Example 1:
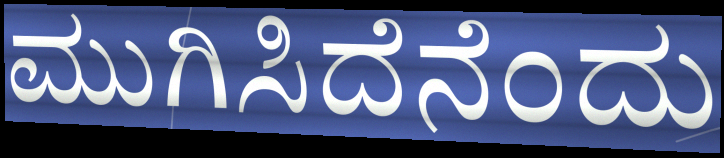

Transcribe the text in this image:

ಮುಗಿಸಿದೆನೆಂದು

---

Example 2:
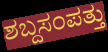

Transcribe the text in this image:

ಶಬ್ದಸಂಪತ್ತು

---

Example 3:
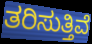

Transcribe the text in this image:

ತರಿಸುತ್ತಿವೆ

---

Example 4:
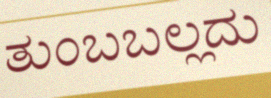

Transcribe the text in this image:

ತುಂಬಬಲ್ಲದು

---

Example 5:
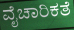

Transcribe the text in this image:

ವೈಚಾರಿಕತೆ